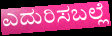
ಎದುರಿಸಬಲ್ಲೆ